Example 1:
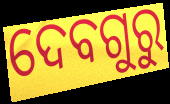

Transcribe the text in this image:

ଦେବଗୁରୁ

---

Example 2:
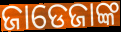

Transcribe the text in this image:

ଜାଡେଜାଙ୍କ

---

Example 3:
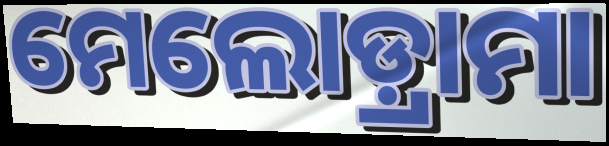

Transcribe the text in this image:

ମେଲୋଡ଼୍ରାମା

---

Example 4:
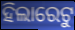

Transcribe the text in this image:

ହିଲାରେଟୁ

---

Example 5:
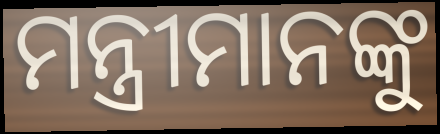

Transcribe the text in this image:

ମନ୍ତ୍ରୀମାନଙ୍କୁ